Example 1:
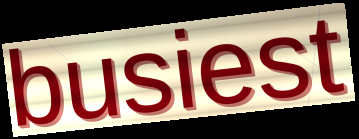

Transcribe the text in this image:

busiest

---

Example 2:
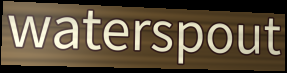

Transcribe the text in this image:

waterspout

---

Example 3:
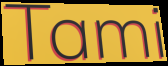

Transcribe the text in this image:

Tami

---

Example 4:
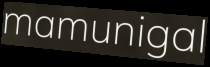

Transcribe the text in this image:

mamunigal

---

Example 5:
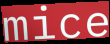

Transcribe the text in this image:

mice